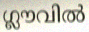
ഗ്ലൗവിൽ